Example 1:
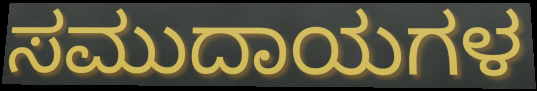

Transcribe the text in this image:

ಸಮುದಾಯಗಳ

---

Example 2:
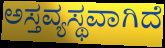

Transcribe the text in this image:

ಅಸ್ತವ್ಯಸ್ಥವಾಗಿದೆ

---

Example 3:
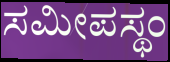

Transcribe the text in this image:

ಸಮೀಪಸ್ಥಂ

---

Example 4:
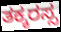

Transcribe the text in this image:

ತಕ್ಕರಸ್ಸ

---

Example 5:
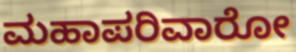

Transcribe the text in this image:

ಮಹಾಪರಿವಾರೋ